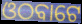
ଓଠବାଟେ